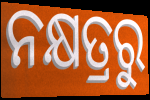
ନକ୍ଷତ୍ରରୁ